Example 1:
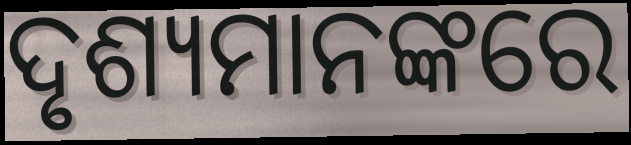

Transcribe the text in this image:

ଦୃଶ୍ୟମାନଙ୍କରେ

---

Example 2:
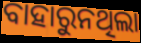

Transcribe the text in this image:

ବାହାରୁନଥିଲା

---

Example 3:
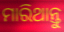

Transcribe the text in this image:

ମାରିଥାନ୍ତୁ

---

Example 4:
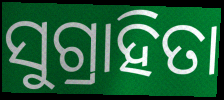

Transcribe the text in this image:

ସୁଗ୍ରାହିତା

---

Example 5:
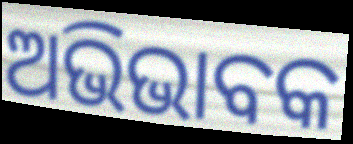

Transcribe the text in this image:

ଅଭିଭାବକ